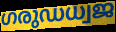
ഗരുഡധ്വജ